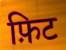
फ़िट